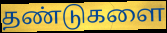
தண்டுகளை